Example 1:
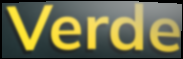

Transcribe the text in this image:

Verde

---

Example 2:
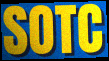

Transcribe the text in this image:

SOTC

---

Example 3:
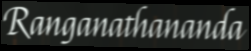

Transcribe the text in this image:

Ranganathananda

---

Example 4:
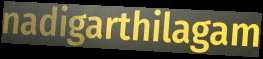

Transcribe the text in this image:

nadigarthilagam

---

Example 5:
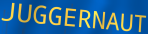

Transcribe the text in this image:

JUGGERNAUT